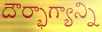
దౌర్భాగ్యాన్ని